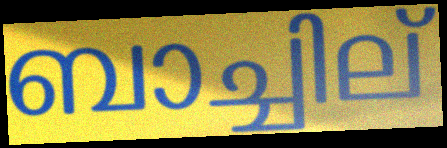
ബാച്ചില്